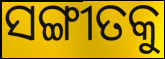
ସଙ୍ଗୀତକୁ